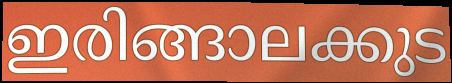
ഇരിങ്ങാലക്കുട